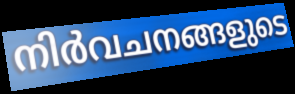
നിർവചനങ്ങളുടെ